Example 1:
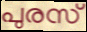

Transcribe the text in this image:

പുരസ്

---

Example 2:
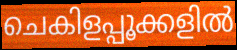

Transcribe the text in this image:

ചെകിളപ്പൂക്കളിൽ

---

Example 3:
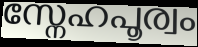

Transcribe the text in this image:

സ്നേഹപൂര്വം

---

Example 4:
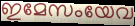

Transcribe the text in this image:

ഇമേസംയേവ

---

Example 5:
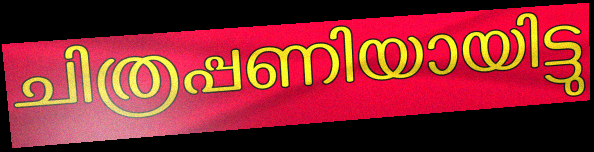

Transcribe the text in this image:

ചിത്രപ്പണിയായിട്ടു